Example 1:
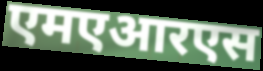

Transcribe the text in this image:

एमएआरएस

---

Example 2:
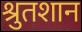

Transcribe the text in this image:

श्रुतशान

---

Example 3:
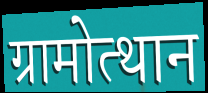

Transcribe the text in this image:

ग्रामोत्थान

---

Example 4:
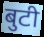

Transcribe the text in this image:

बुटी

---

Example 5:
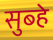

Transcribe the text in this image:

सुब्हे